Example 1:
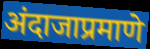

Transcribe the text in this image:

अंदाजाप्रमाणे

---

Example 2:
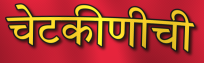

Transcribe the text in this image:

चेटकीणीची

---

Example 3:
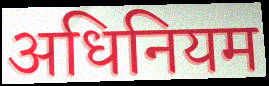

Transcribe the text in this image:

अधिनियम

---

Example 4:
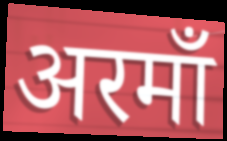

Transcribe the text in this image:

अरमाँ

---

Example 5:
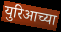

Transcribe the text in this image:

युरिआच्या